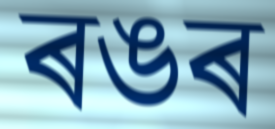
ৰঙৰ